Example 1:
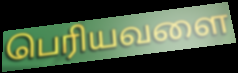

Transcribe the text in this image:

பெரியவளை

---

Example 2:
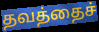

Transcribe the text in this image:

தவத்தைச்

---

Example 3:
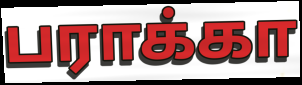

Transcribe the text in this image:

பராக்கா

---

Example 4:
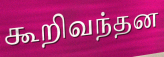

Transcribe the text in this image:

கூறிவந்தன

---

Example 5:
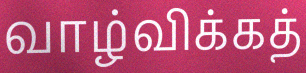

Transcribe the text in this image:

வாழ்விக்கத்